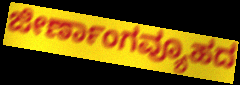
ಜೀರ್ಣಾಂಗವ್ಯೂಹದ